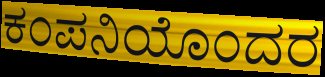
ಕಂಪನಿಯೊಂದರ